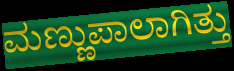
ಮಣ್ಣುಪಾಲಾಗಿತ್ತು